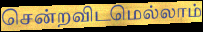
சென்றவிடமெல்லாம்